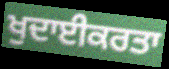
ਖੁਦਾਈਕਰਤਾ